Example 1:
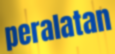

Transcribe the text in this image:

peralatan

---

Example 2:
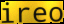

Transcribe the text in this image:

ireo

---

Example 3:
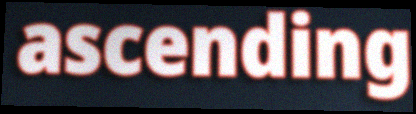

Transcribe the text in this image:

ascending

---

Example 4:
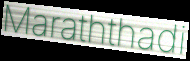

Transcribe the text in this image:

Maraththadi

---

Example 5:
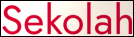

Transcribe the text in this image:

Sekolah